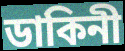
ডাকিনী